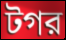
টগর